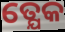
ତ୍ଯେକ